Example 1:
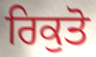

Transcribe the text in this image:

ਰਿਕੁਤੋ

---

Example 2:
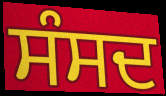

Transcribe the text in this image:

ਸੰਸਦ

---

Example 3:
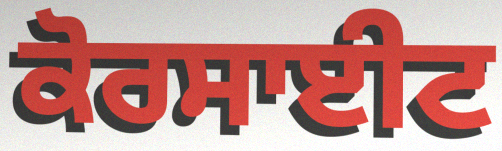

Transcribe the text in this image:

ਕੋਰਸਾਈਟ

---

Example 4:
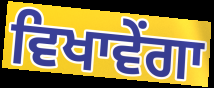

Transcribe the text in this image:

ਵਿਖਾਵੇਂਗਾ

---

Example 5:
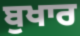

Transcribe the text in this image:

ਬੁਖਾਰ